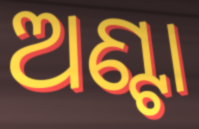
ଅଣ୍ଟା